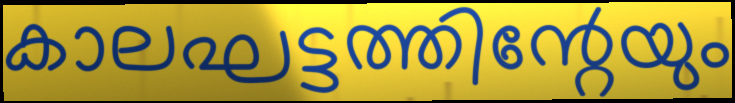
കാലഘട്ടത്തിന്റേയും